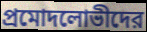
প্রমোদলোভীদের